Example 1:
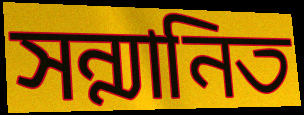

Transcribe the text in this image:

সন্মানিত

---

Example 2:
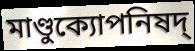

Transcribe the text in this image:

মাণ্ডুক্যোপনিষদ্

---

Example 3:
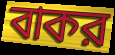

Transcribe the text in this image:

বাকর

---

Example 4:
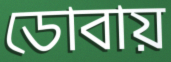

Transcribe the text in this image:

ডোবায়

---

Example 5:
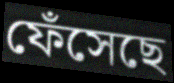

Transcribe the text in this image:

ফেঁসেছে